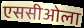
एससीओला